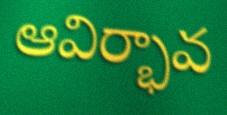
ఆవిర్భావ